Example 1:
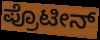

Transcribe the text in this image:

ಪ್ರೊಟೀನ್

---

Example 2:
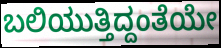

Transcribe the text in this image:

ಬಲಿಯುತ್ತಿದ್ದಂತೆಯೇ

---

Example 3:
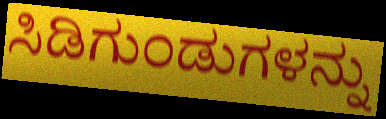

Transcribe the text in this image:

ಸಿಡಿಗುಂಡುಗಳನ್ನು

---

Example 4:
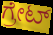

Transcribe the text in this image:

ಗ್ರೇಟ್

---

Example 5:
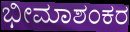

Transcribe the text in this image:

ಭೀಮಾಶಂಕರ